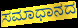
ಸಮಾಧಾನದ